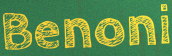
Benoni